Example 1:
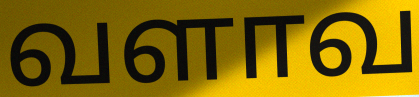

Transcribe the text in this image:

வளாவ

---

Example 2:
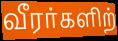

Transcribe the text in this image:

வீரர்களிற்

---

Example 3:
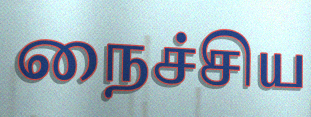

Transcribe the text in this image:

நைச்சிய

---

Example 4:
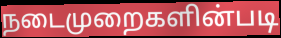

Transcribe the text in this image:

நடைமுறைகளின்படி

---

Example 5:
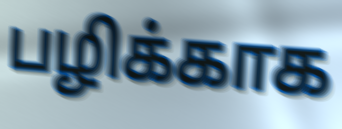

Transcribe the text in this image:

பழிக்காக